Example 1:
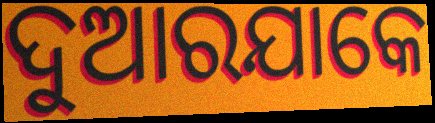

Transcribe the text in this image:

ଦୁଆରଯାକେ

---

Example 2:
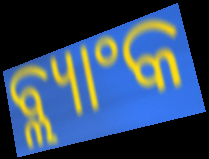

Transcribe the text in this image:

ବ୍ଲ୍ଯାଂକ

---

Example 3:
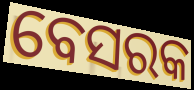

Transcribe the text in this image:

ବେସରକ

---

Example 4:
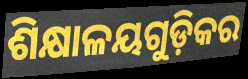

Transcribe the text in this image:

ଶିକ୍ଷାଳୟଗୁଡ଼ିକର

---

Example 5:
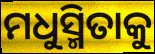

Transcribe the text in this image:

ମଧୁସ୍ମିତାକୁ